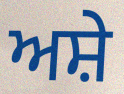
ਅਸ਼ੇ